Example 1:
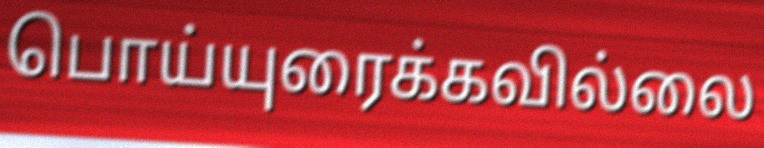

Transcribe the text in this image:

பொய்யுரைக்கவில்லை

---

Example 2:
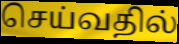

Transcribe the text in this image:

செய்வதில்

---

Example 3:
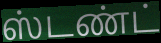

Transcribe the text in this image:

ஸ்டண்ட்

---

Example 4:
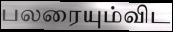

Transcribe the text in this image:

பலரையும்விட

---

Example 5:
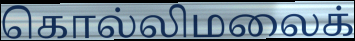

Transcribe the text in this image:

கொல்லிமலைக்